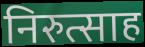
निरुत्साह